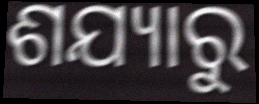
ଶଯ୍ୟାରୁ